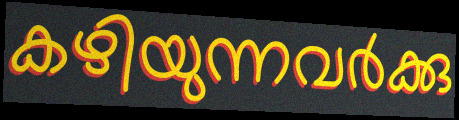
കഴിയുന്നവർക്കു